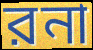
রনা